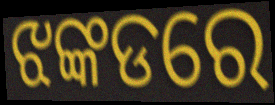
ଝଙ୍କଡରେ